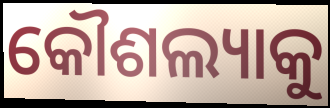
କୌଶଲ୍ୟାକୁ